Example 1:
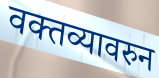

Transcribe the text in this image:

वक्तव्यावरुन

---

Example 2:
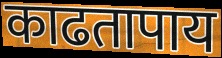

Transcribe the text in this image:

काढतापाय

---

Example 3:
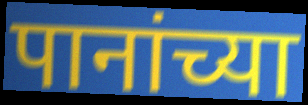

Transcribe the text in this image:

पानांच्या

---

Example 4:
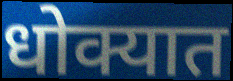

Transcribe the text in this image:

धोक्यात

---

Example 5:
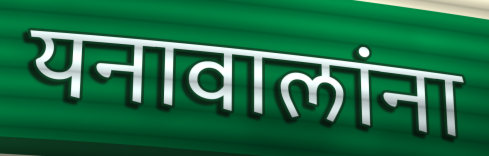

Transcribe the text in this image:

यनावालांना